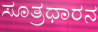
ಸೂತ್ರಧಾರನ